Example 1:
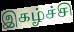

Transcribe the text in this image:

இகழ்ச்சி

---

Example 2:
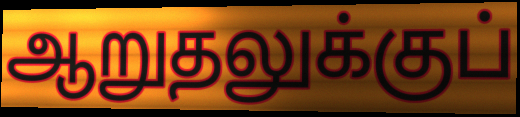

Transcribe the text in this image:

ஆறுதலுக்குப்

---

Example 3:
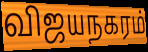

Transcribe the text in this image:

விஜயநகரம்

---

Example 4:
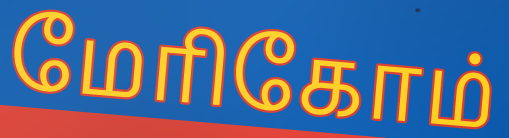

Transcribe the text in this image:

மேரிகோம்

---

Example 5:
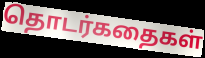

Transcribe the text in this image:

தொடர்கதைகள்